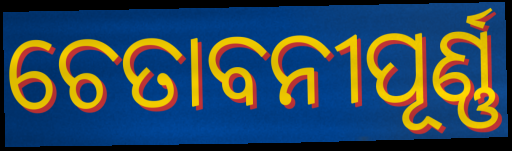
ଚେତାବନୀପୂର୍ଣ୍ଣ